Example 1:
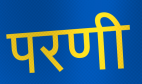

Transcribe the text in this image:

परणी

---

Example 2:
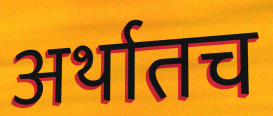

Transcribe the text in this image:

अर्थातच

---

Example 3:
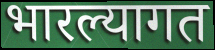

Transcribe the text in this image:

भारल्यागत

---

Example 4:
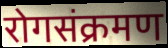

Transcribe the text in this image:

रोगसंक्रमण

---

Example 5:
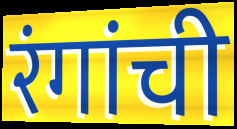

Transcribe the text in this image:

रंगांची